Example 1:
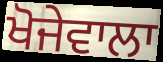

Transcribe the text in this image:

ਖੋਜੇਵਾਲਾ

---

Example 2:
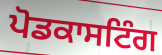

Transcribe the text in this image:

ਪੋਡਕਾਸਟਿੰਗ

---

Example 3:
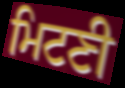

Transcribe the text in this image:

ਮਿਟਣੀ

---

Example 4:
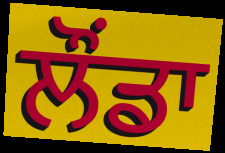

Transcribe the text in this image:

ਲੌਂਡਾ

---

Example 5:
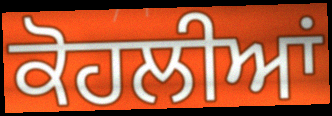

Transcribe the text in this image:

ਕੋਹਲੀਆਂ